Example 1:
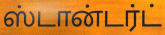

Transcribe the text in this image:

ஸ்டான்டர்ட்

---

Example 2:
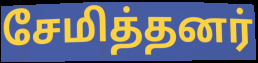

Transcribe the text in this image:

சேமித்தனர்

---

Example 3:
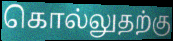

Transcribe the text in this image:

கொல்லுதற்கு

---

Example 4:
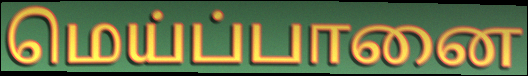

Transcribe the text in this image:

மெய்ப்பானை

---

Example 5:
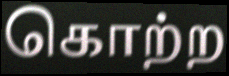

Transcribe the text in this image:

கொற்ற